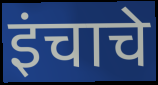
इंचाचे